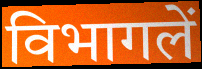
विभागलें